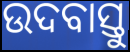
ଉଦବାସ୍ତୁ